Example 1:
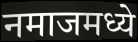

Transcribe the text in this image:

नमाजमध्ये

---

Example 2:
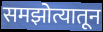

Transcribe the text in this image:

समझोत्यातून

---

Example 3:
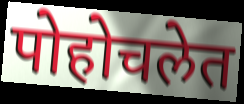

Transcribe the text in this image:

पोहोचलेत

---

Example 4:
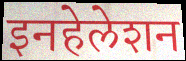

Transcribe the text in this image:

इनहेलेशन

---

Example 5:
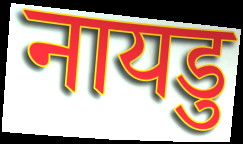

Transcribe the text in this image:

नायडु